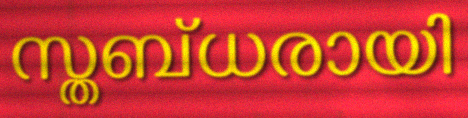
സ്തബ്ധരായി